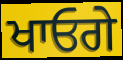
ਖਾਓਗੇ